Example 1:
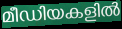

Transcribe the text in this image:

മീഡിയകളിൽ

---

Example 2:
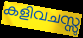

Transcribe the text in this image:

കളിവചസ്സു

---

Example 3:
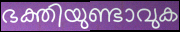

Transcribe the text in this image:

ഭക്തിയുണ്ടാവുക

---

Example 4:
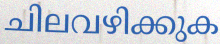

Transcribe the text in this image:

ചിലവഴിക്കുക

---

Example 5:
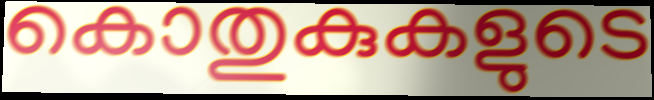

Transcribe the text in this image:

കൊതുകുകളുടെ